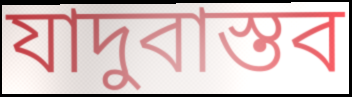
যাদুবাস্তব